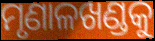
ମୃଣାଳଖଣ୍ଡକୁ